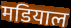
मडियाल